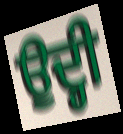
ਉਦ੍ਹੀ